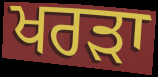
ਖਰੜਾ